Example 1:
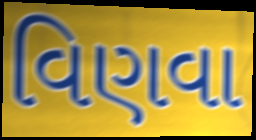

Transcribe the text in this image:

વિણવા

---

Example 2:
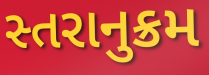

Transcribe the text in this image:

સ્તરાનુક્રમ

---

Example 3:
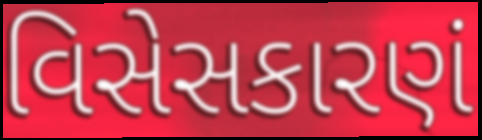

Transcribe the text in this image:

વિસેસકારણં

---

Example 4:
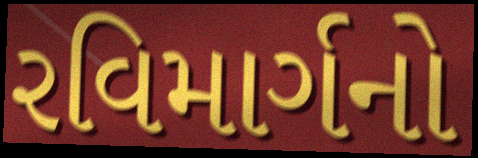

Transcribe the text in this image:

રવિમાર્ગનો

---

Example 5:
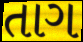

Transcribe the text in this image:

તાગ